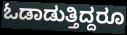
ಓಡಾಡುತ್ತಿದ್ದರೂ